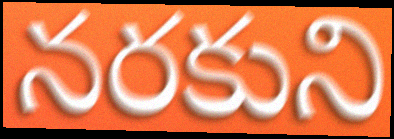
నరకుని